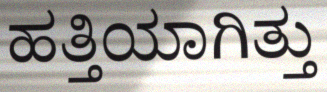
ಹತ್ತಿಯಾಗಿತ್ತು